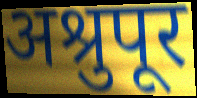
अश्रुपूर